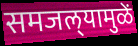
समजल्यामुळें